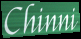
Chinni